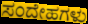
ಸಂದೇಹಗಳು